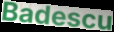
Badescu